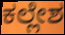
ಕಲ್ಲೇಶ